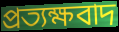
প্রত্যক্ষবাদ